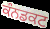
ਕੰਨਡਕਟ